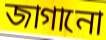
জাগানো